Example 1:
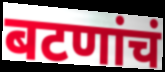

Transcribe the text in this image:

बटणांचं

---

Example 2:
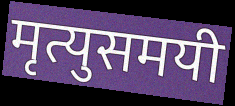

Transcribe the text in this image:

मृत्युसमयी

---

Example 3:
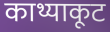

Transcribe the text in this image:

काथ्याकूट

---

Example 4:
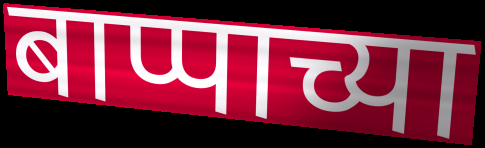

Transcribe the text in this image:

बाप्पाच्या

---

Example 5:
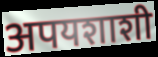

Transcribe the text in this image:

अपयशाशी